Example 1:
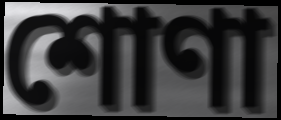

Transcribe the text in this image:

শোণা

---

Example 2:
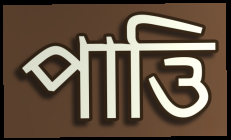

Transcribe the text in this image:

পাত্তি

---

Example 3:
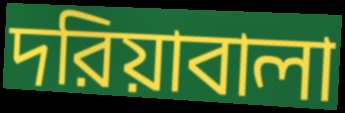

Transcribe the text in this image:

দরিয়াবালা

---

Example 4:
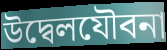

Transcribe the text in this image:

উদ্বেলযৌবনা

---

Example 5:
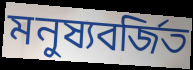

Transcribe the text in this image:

মনুষ্যবর্জিত